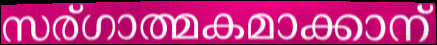
സര്ഗാത്മകമാക്കാന്